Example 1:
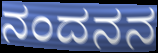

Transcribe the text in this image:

ನಂದನನ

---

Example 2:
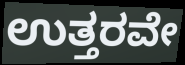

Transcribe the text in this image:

ಉತ್ತರವೇ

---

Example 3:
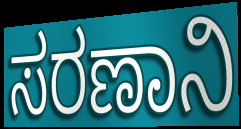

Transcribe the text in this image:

ಸರಣಾನಿ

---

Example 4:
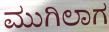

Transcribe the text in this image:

ಮುಗಿಲಾಗ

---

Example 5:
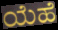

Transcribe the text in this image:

ಯೆಹೆ